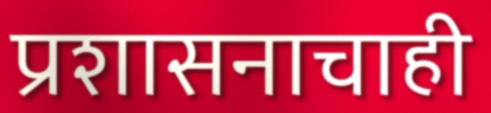
प्रशासनाचाही